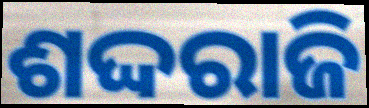
ଶଦ୍ଦରାଜି